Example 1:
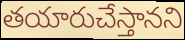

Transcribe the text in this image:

తయారుచేస్తానని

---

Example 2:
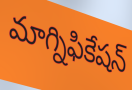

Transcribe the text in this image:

మాగ్నిఫికేషన్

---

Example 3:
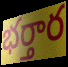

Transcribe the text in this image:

భర్తార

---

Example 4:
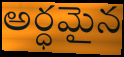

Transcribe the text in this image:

అర్ధమైన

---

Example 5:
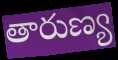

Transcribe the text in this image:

తారుణ్య